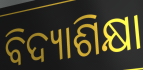
ବିଦ୍ୟାଶିକ୍ଷା